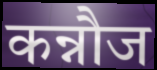
कन्नौज